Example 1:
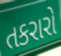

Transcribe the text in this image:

તકરારો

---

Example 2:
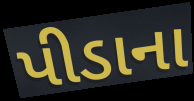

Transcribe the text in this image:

પીડાના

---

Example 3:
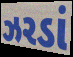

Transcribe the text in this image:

ઝરડાં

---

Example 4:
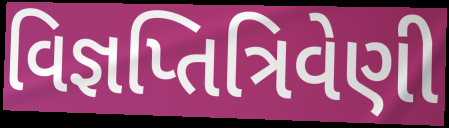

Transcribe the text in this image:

વિજ્ઞપ્તિત્રિવેણી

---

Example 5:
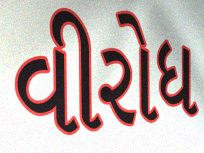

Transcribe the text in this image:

વીરોધ